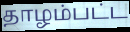
தாழம்பட்ட